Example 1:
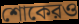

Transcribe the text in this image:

শোকেরও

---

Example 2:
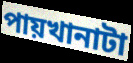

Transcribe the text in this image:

পায়খানাটা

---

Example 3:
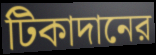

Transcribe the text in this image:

টিকাদানের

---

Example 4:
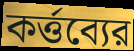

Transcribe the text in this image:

কর্ত্তব্যের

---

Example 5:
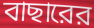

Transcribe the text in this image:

বাছারের